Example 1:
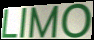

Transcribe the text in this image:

LIMO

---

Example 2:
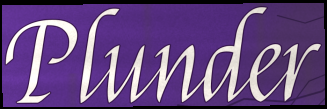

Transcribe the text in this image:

Plunder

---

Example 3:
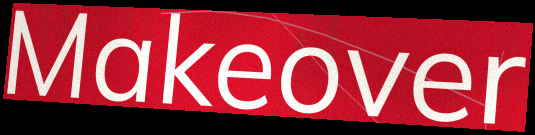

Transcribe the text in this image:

Makeover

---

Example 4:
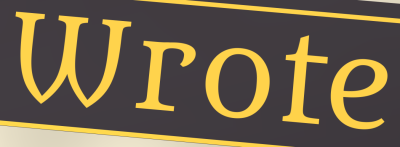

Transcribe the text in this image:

Wrote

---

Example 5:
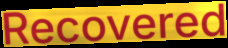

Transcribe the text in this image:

Recovered